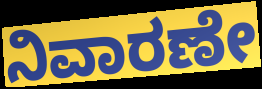
ನಿವಾರಣೇ